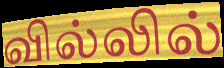
வில்லில்